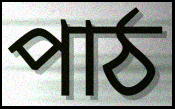
পাঠ